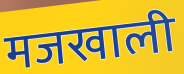
मजखाली